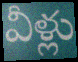
వీళ్లు